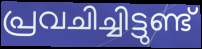
പ്രവചിച്ചിട്ടുണ്ട്